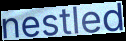
nestled